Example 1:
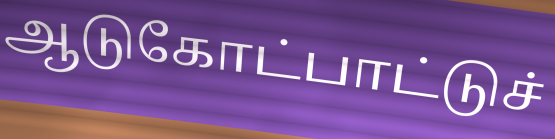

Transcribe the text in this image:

ஆடுகோட்பாட்டுச்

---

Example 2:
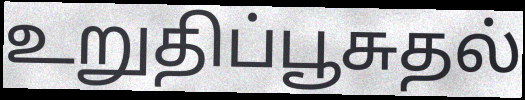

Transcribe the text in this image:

உறுதிப்பூசுதல்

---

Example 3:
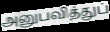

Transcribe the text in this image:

அனுபவித்துப்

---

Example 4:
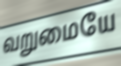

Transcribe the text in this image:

வறுமையே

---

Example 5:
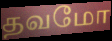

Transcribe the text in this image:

தவமோ